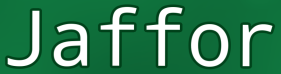
Jaffor